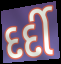
દર્દી